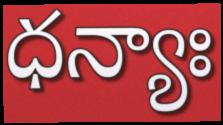
ధన్యాః